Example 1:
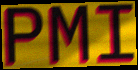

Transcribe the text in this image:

PMI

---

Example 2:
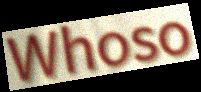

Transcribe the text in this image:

Whoso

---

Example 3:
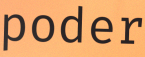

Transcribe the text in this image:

poder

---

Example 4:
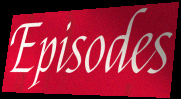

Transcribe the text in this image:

Episodes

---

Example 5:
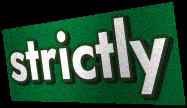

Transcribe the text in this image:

strictly